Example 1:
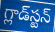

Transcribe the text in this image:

గ్లాడ్‌స్టన్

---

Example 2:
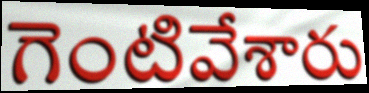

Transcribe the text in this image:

గెంటివేశారు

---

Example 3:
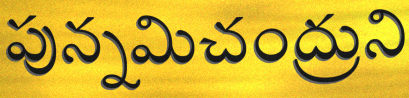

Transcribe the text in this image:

పున్నమిచంద్రుని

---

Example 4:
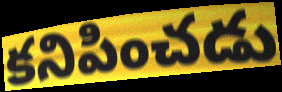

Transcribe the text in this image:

కనిపించడు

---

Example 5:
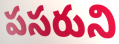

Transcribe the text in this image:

పసరుని